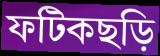
ফটিকছড়ি